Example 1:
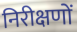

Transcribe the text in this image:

निरीक्षणों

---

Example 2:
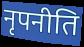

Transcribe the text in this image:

नृपनीति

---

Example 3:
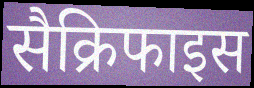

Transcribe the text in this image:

सैक्रिफाइस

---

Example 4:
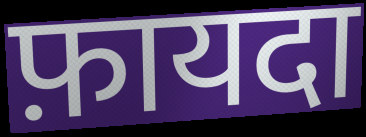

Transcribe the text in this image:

फ़ायदा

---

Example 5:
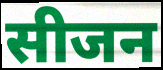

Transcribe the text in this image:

सीजन